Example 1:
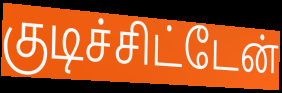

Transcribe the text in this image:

குடிச்சிட்டேன்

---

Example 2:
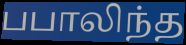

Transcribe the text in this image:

பபாலிந்த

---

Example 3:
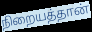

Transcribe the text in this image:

நிறையத்தான்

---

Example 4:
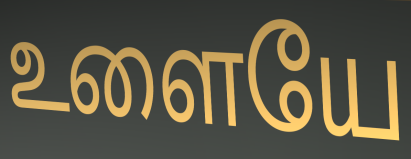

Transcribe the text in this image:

உளையே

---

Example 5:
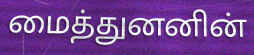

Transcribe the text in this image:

மைத்துனனின்